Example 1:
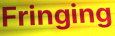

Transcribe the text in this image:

Fringing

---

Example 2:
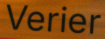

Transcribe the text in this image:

Verier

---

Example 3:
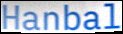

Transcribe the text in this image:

Hanbal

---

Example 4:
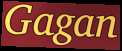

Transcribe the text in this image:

Gagan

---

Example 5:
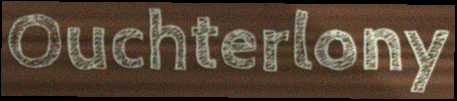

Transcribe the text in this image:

Ouchterlony